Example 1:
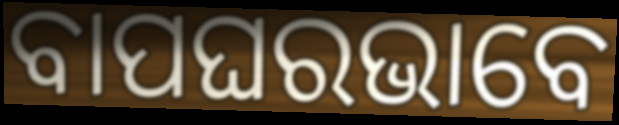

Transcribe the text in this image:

ବାପଘରଭାବେ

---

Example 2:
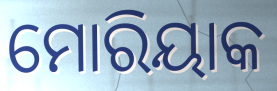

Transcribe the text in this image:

ମୋରିୟାକ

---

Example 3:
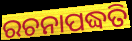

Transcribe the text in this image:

ରଚନାପଦ୍ଧତି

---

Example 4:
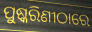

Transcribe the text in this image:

ପୁଷ୍କରିଣୀଠାରେ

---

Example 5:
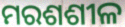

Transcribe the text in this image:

ମରଶଶୀଳ